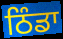
ਠਿੰਡਾ